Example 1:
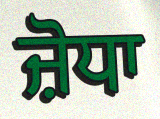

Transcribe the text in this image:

ਜ਼ੋਧਾ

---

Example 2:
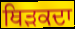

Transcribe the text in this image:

ਥਿੜਕਦਾ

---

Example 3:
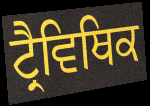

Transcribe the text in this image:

ਟ੍ਰੈਵਿਥਿਕ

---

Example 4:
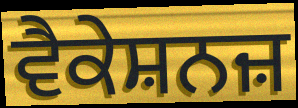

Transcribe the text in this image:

ਵੈਕੇਸ਼ਨਜ਼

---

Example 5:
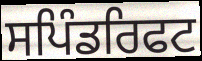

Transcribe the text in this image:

ਸਪਿੰਡਰਿਫਟ